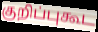
குறிப்புகூட